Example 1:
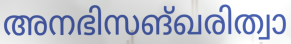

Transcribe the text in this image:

അനഭിസങ്ഖരിത്വാ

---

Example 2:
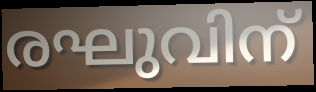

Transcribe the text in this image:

രഘുവിന്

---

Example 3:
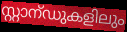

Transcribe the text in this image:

സ്റ്റാന്ഡുകളിലും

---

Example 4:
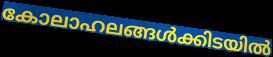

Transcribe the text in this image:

കോലാഹലങ്ങൾക്കിടയിൽ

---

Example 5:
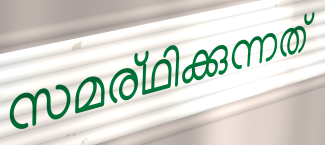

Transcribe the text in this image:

സമര്ഥിക്കുന്നത്